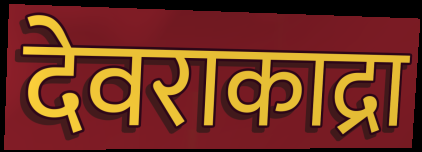
देवराकाद्रा